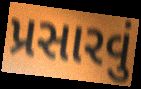
પ્રસારવું